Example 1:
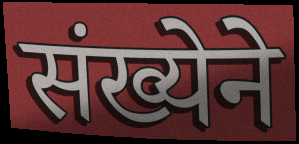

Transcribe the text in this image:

संख्येने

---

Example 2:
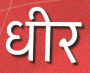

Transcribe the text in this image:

धीर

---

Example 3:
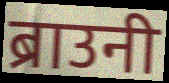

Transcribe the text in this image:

ब्राउनी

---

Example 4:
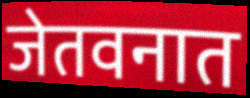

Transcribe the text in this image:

जेतवनात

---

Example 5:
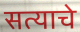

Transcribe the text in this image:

सत्याचे